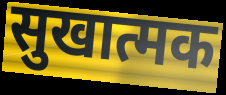
सुखात्मक